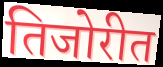
तिजोरीत